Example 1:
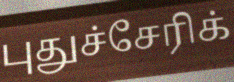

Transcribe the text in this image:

புதுச்சேரிக்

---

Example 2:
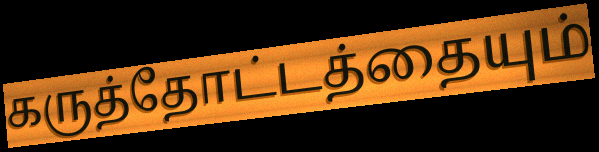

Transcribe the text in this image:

கருத்தோட்டத்தையும்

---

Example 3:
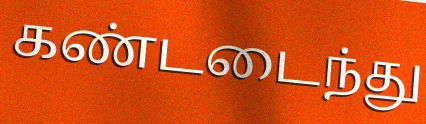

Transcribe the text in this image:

கண்டடைந்து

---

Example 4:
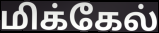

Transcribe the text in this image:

மிக்கேல்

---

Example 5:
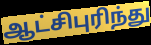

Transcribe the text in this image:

ஆட்சிபுரிந்து